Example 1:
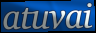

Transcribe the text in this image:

atuvai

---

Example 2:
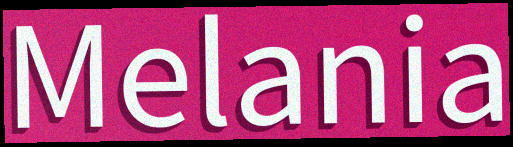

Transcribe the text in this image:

Melania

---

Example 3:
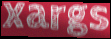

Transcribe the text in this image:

xargs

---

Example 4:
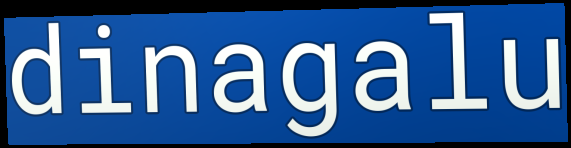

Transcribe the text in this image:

dinagalu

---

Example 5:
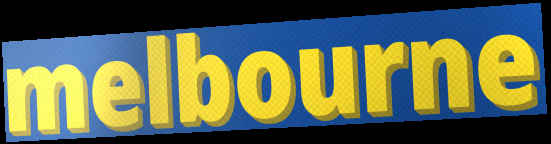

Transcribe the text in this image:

melbourne